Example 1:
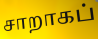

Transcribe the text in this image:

சாறாகப்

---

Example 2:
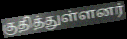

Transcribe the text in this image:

குதித்துள்ளனர்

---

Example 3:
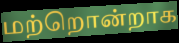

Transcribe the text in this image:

மற்றொன்றாக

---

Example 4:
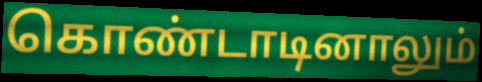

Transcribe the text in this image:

கொண்டாடினாலும்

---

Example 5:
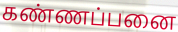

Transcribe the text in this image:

கண்ணப்பனை